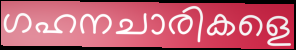
ഗഹനചാരികളെ